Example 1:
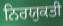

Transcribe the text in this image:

ਨਿਰਯੁਕਤੀ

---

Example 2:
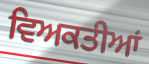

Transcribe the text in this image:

ਵਿਅਕਤੀਆਂ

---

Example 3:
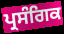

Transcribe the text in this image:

ਪ੍ਰਸੰਗਿਕ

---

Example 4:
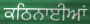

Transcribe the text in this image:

ਕਠਿਨਾਈਆਂ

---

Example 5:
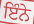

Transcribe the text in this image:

ਇੰਨੇ